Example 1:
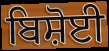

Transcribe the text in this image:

ਬਿਸ਼ੋਈ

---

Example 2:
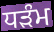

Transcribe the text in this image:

ਧੜੰਮ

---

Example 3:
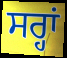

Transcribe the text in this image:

ਸਰ੍ਹਾਂ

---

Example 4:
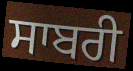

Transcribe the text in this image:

ਸਾਬਰੀ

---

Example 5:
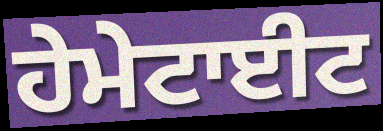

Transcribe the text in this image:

ਹੇਮੇਟਾਈਟ